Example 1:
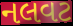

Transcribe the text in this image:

નલવટ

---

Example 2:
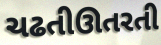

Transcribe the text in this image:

ચઢતીઊતરતી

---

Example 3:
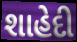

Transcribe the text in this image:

શાહેદી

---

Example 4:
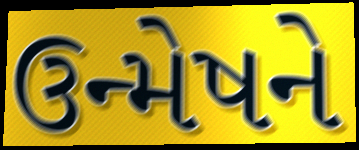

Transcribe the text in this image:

ઉન્મેષને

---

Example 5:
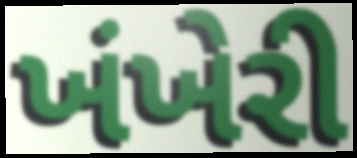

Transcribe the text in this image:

ખંખેરી